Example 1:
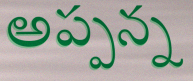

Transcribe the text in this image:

అప్పన్న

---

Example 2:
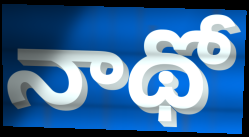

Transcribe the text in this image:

నాథో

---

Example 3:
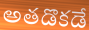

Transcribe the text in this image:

అతడొకడే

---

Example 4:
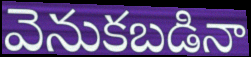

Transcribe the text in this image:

వెనుకబడినా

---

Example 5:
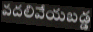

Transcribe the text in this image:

వదలివేయబడ్డ